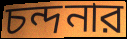
চন্দনার